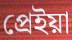
প্রেইয়া